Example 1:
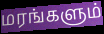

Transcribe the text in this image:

மரங்களும்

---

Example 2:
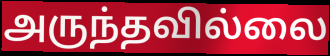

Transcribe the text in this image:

அருந்தவில்லை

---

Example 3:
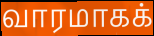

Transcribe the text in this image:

வாரமாகக்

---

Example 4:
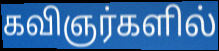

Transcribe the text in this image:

கவிஞர்களில்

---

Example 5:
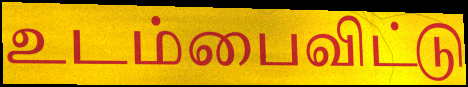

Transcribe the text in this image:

உடம்பைவிட்டு